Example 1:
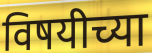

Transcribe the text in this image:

विषयीच्या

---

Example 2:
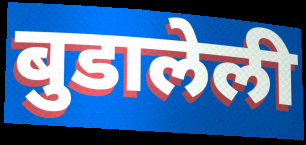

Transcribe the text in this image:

बुडालेली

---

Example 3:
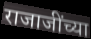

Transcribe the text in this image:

राजाजींच्या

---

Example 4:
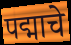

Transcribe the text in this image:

पद्माचे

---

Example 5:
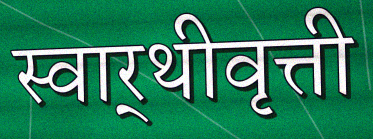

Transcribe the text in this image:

स्वार्थीवृत्ती